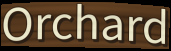
Orchard